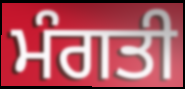
ਮੰਗਤੀ